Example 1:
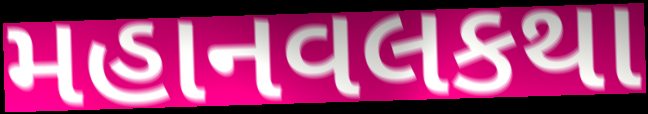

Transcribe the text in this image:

મહાનવલકથા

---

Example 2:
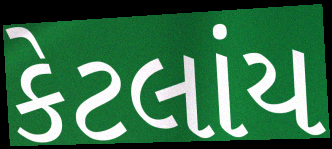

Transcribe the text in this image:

કેટલાંય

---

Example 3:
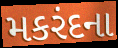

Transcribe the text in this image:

મકરંદના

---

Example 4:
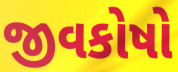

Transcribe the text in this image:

જીવકોષો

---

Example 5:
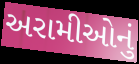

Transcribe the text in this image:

અરામીઓનું